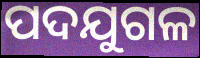
ପଦଯୁଗଳ